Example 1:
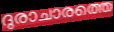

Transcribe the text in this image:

ദുരാചാരത്തെ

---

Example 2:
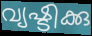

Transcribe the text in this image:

വ്യഷ്ടിക്കു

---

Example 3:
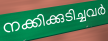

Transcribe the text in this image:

നക്കിക്കുടിച്ചവർ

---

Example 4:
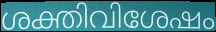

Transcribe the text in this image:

ശക്തിവിശേഷം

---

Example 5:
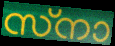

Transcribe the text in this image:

സ്‌നാ